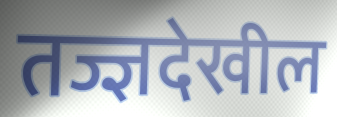
तज्ज्ञदेखील